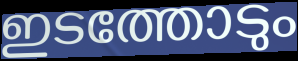
ഇടത്തോടും